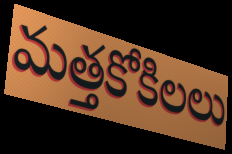
మత్తకోకిలలు